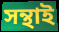
সন্থাই